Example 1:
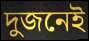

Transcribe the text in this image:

দুজনেই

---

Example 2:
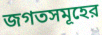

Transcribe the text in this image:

জগতসমূহের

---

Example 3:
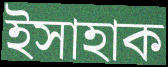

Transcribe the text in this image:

ইসাহাক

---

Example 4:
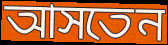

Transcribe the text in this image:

আসতেন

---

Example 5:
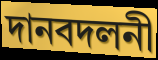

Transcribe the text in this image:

দানবদলনী